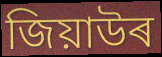
জিয়াউৰ